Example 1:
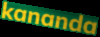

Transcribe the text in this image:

kananda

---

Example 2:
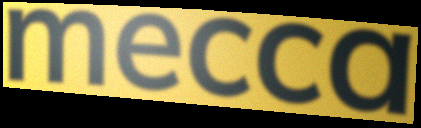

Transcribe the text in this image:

mecca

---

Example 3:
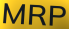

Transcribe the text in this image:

MRP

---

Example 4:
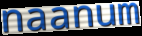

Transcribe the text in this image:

naanum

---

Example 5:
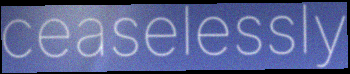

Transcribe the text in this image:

ceaselessly